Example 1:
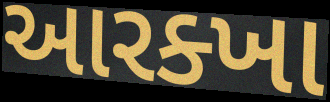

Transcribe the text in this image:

આરક્ખા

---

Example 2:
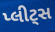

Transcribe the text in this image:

પ્લીટ્સ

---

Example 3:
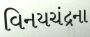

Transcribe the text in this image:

વિનયચંદ્રના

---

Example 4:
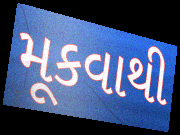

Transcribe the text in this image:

મૂકવાથી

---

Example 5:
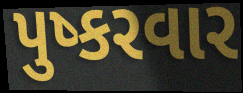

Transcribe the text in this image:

પુષ્કરવાર